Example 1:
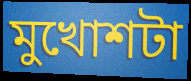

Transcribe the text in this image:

মুখোশটা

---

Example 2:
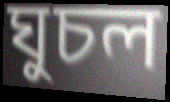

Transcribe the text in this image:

ঘুচল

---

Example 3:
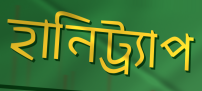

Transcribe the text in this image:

হানিট্র্যাপ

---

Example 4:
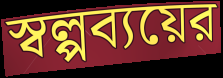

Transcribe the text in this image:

স্বল্পব্যয়ের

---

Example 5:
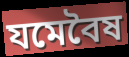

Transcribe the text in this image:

যমেবৈষ